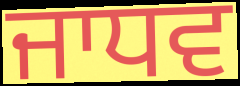
ਜਾਧਵ